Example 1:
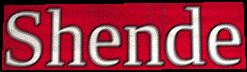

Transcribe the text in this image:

Shende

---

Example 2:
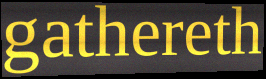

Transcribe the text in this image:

gathereth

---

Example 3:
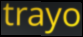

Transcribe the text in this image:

trayo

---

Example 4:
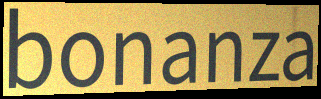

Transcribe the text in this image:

bonanza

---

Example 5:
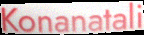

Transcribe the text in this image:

Konanatali